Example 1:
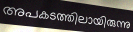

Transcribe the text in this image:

അപകടത്തിലായിരുന്നു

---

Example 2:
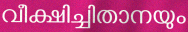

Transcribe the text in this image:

വീക്ഷിച്ചിതാനയും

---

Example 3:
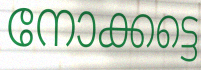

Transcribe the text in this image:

നോക്കട്ടെ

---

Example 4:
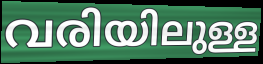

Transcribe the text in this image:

വരിയിലുള്ള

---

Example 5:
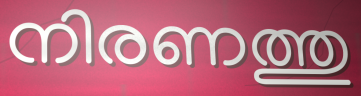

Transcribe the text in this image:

നിരണത്തു